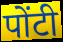
पोंटी